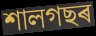
শালগছৰ